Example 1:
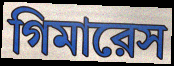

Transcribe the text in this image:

গিমারেস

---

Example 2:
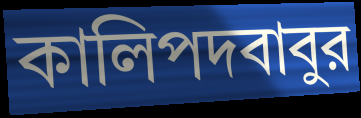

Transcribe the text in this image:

কালিপদবাবুর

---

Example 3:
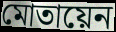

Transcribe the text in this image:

মোতায়েন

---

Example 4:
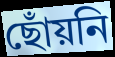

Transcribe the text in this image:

ছোঁয়নি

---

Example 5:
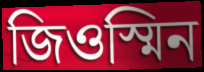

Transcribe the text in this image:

জিওস্মিন